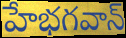
హేభగవాన్